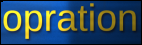
opration